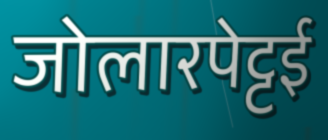
जोलारपेट्टई